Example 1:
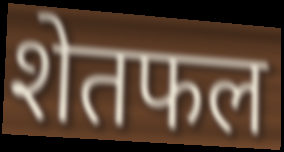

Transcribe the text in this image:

शेतफल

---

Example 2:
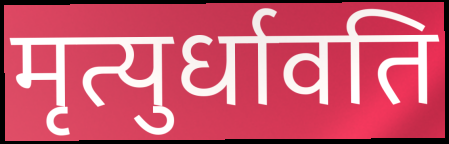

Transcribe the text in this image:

मृत्युर्धावति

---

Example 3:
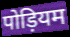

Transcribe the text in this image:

पोड़ियम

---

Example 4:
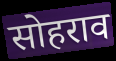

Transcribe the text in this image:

सोहराव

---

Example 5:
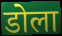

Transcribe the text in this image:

डोला